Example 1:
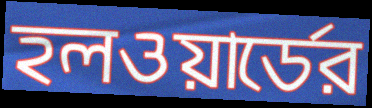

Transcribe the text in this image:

হলওয়ার্ডের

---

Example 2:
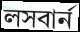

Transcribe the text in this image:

লসবার্ন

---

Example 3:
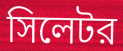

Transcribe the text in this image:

সিলেটর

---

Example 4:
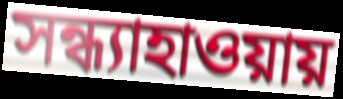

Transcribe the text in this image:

সন্ধ্যাহাওয়ায়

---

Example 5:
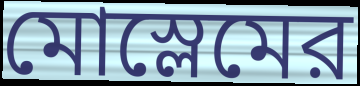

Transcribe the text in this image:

মোস্লেমের